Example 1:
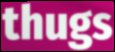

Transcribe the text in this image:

thugs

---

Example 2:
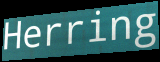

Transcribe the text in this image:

Herring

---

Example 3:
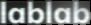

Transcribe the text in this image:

lablab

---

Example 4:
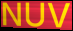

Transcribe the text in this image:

NUV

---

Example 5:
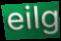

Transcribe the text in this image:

eilg